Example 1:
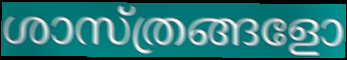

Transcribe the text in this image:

ശാസ്ത്രങ്ങളോ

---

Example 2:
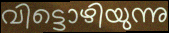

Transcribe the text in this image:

വിട്ടൊഴിയുന്നു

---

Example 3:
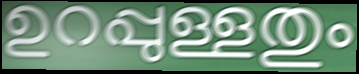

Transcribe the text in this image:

ഉറപ്പുള്ളതും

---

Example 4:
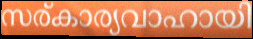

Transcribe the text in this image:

സര്കാര്യവാഹായി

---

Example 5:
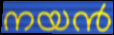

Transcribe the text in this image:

നയൻ